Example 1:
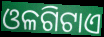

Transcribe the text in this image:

ଓଳଗିଟାଏ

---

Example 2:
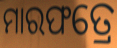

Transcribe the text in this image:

ମାରଫତ୍ରେ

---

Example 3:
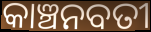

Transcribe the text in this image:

କାଞ୍ଚନବତୀ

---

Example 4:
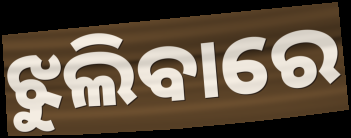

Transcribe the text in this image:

ଝୁଲିବାରେ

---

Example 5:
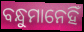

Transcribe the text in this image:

ବନ୍ଧୁମାନେହିଁ